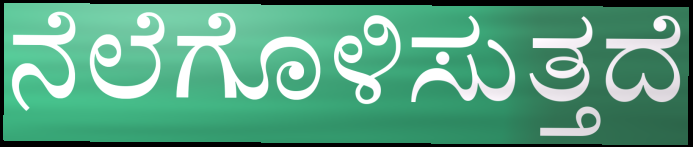
ನೆಲೆಗೊಳಿಸುತ್ತದೆ